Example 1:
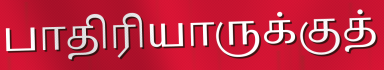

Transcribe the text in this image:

பாதிரியாருக்குத்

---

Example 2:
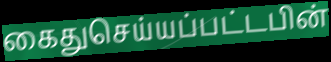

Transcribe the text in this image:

கைதுசெய்யப்பட்டபின்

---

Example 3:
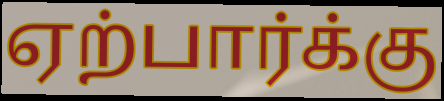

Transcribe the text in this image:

ஏற்பார்க்கு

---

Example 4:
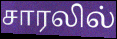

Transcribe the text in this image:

சாரலில்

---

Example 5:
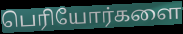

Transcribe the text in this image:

பெரியோர்களை